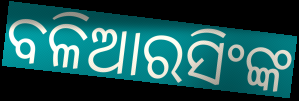
ବଳିଆରସିଂଙ୍କ